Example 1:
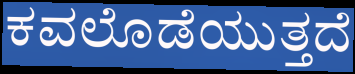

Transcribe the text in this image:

ಕವಲೊಡೆಯುತ್ತದೆ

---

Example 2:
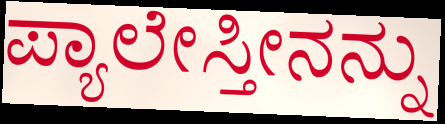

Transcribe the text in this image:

ಪ್ಯಾಲೇಸ್ತೀನನ್ನು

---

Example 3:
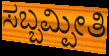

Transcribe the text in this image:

ಸಬ್ಬಮ್ಪೀತಿ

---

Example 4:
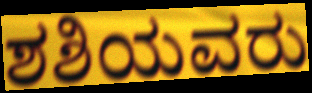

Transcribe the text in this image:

ಶಶಿಯವರು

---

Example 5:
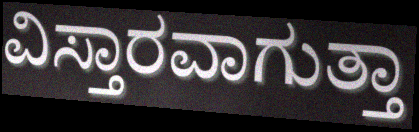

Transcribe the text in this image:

ವಿಸ್ತಾರವಾಗುತ್ತಾ